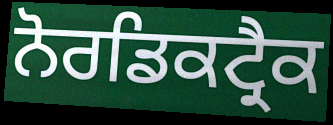
ਨੋਰਡਿਕਟ੍ਰੈਕ